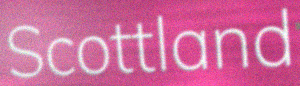
Scottland